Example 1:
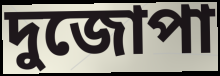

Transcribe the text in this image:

দুজোপা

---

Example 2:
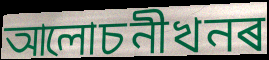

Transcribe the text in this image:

আলোচনীখনৰ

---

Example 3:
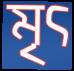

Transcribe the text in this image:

মৃৎ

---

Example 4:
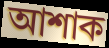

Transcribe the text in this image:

আশাক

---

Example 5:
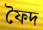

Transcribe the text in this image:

ফৈদ